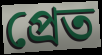
প্রেত